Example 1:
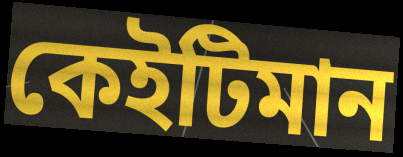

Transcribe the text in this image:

কেইটিমান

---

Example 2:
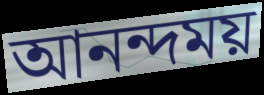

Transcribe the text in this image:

আনন্দময়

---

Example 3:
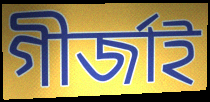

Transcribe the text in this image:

গীৰ্জাই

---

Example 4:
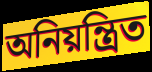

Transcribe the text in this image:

অনিয়ন্ত্ৰিত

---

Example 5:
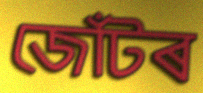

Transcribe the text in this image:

জোঁটৰ